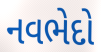
નવભેદો